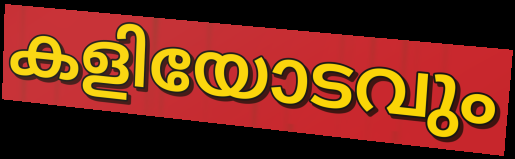
കളിയോടവും